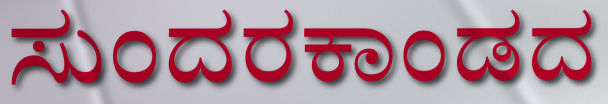
ಸುಂದರಕಾಂಡದ